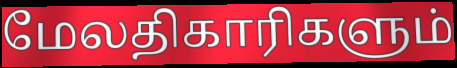
மேலதிகாரிகளும்